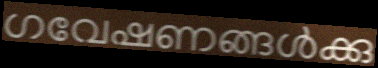
ഗവേഷണങ്ങൾക്കു